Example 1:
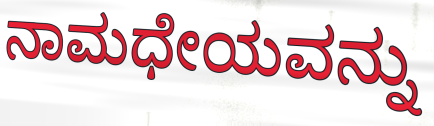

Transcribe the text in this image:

ನಾಮಧೇಯವನ್ನು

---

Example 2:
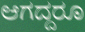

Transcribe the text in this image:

ಆಗದ್ದರೂ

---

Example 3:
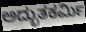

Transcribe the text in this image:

ಅದ್ಭುತಕರ್ಮಿ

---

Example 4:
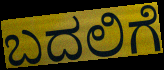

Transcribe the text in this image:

ಬದಲಿಗೆ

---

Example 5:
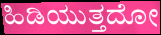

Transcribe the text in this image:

ಹಿಡಿಯುತ್ತದೋ